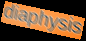
diaphysis